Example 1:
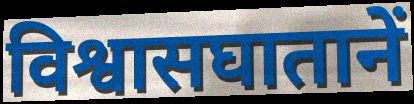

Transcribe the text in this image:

विश्वासघातानें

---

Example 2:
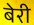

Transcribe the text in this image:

बेरी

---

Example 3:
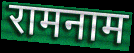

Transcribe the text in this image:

रामनाम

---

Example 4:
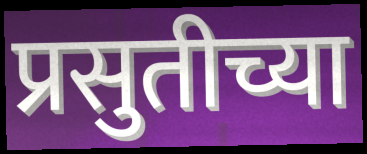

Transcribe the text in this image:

प्रसुतीच्या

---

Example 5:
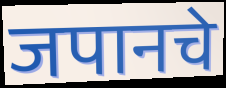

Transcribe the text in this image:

जपानचे